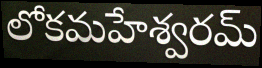
లోకమహేశ్వరమ్